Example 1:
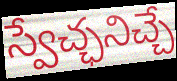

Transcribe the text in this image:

స్వేచ్ఛనిచ్చే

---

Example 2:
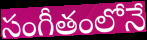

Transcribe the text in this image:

సంగీతంలోనే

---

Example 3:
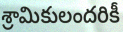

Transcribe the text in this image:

శ్రామికులందరికీ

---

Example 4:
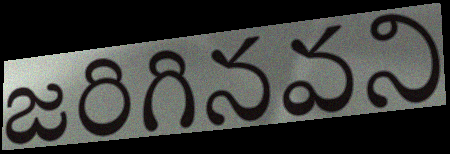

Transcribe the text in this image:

జరిగినవని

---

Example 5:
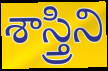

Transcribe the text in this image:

శాస్త్రిని